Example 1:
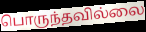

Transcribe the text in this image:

பொருந்தவில்லை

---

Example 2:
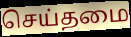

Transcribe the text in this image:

செய்தமை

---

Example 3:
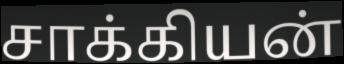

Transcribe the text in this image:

சாக்கியன்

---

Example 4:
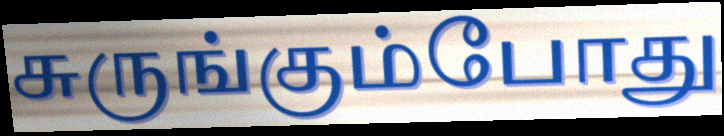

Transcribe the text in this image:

சுருங்கும்போது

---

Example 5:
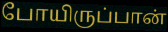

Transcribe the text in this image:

போயிருப்பான்